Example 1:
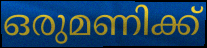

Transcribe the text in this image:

ഒരുമണിക്ക്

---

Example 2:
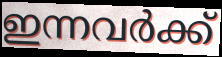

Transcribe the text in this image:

ഇന്നവർക്ക്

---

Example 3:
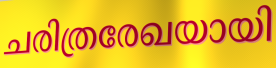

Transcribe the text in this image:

ചരിത്രരേഖയായി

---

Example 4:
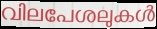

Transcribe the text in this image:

വിലപേശലുകൾ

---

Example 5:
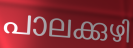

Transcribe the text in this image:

പാലക്കുഴി